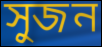
সুজন